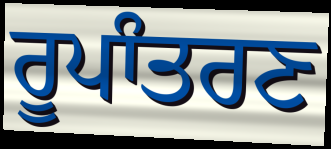
ਰੂਪਾੰਤਰਣ